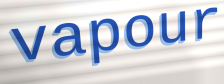
vapour